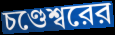
চণ্ডেশ্বরের